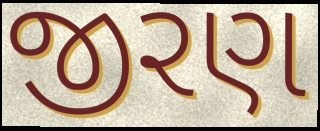
જીરણ